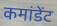
कमांडेंट